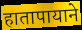
हातापायाने